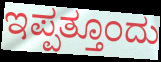
ಇಪ್ಪತ್ತೂಂದು